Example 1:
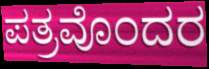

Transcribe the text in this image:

ಪತ್ರವೊಂದರ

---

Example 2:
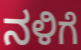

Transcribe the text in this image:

ನಳಿಗೆ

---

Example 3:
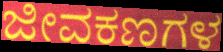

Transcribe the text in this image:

ಜೀವಕಣಗಳ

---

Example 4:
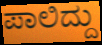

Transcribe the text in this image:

ಪಾಲಿದ್ದು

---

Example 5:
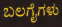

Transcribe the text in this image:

ಬಲಗೈಗಳು